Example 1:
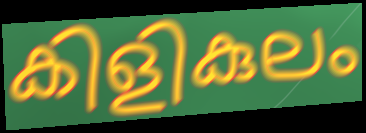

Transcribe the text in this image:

കിളികുലം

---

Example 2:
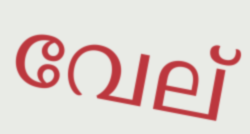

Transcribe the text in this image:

വേല്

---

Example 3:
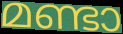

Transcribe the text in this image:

മണ്ടാ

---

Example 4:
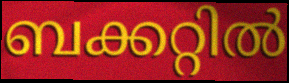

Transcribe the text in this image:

ബക്കറ്റിൽ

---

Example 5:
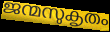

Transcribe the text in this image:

ജന്മസുകൃതം